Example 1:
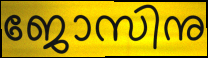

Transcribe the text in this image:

ജോസിനു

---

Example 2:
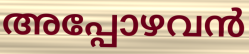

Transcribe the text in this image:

അപ്പോഴവൻ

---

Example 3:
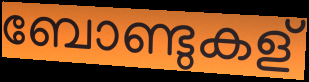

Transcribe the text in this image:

ബോണ്ടുകള്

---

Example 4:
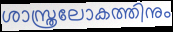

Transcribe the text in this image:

ശാസ്ത്രലോകത്തിനും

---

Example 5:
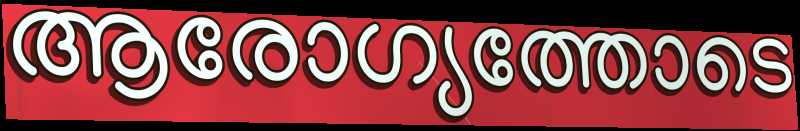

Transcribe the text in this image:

ആരോഗ്യത്തോടെ